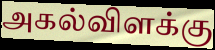
அகல்விளக்கு